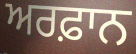
ਅਰਫ਼ਾਨ